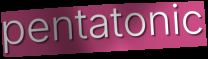
pentatonic